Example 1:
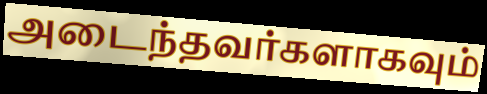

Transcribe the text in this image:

அடைந்தவர்களாகவும்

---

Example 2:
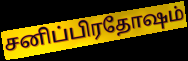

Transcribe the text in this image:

சனிப்பிரதோஷம்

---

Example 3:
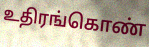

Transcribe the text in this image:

உதிரங்கொண்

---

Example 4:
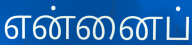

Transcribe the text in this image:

என்னைப்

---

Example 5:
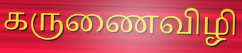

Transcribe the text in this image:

கருணைவிழி